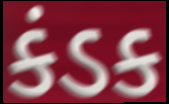
કંડક